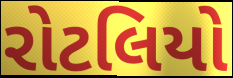
રોટલિયો